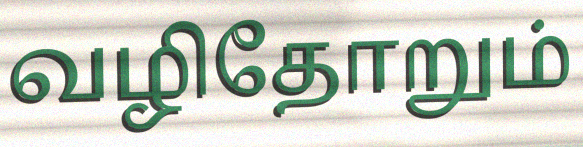
வழிதோறும்